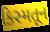
કિસ્મતૂન